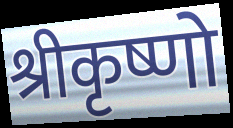
श्रीकृष्णो